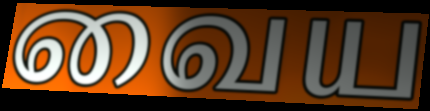
வைய